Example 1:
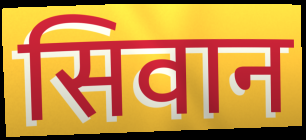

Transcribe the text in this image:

सिवान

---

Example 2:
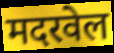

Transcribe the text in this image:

मदरवेल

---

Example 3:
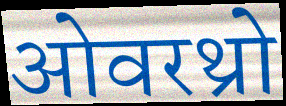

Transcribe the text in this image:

ओवरथ्रो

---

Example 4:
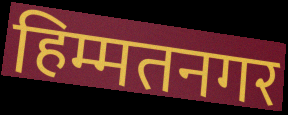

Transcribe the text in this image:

हिम्मतनगर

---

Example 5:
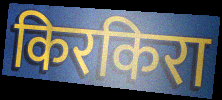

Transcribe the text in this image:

किरकिरा